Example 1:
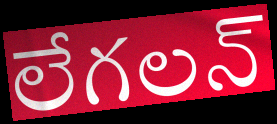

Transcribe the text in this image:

లేగలన్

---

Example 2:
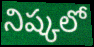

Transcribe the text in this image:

నిష్కలో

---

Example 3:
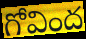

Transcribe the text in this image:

గోవింద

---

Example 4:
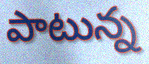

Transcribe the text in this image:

పాటున్న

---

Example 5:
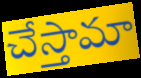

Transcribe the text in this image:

చేస్తామా